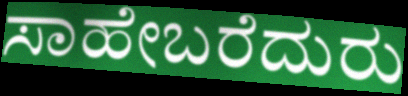
ಸಾಹೇಬರೆದುರು